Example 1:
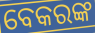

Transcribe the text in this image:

ବେକରଙ୍କ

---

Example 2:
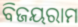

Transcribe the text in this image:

ବିଜୟରାମ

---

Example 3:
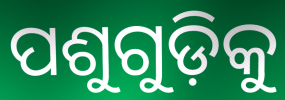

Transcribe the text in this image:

ପଶୁଗୁଡ଼ିକୁ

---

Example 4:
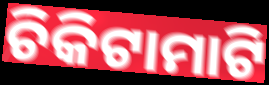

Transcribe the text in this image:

ଚିକିଟାମାଟି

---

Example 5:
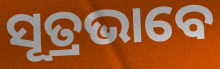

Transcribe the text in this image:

ସୂତ୍ରଭାବେ